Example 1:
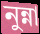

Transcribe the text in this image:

নুন্না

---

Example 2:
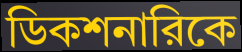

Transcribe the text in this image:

ডিকশনারিকে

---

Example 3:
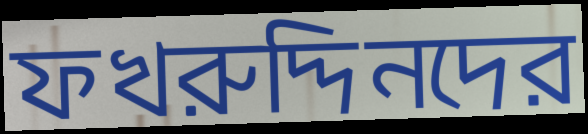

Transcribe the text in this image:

ফখরুদ্দিনদের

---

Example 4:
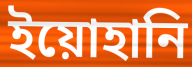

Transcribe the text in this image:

ইয়োহানি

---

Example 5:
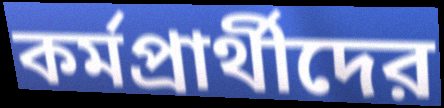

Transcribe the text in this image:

কর্মপ্রার্থীদের